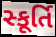
સ્કૂર્તિ